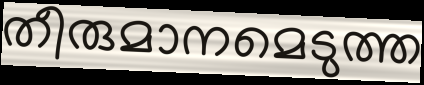
തീരുമാനമെടുത്ത